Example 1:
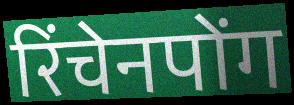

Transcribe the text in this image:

रिंचेनपोंग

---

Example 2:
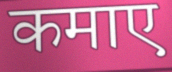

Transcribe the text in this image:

कमाए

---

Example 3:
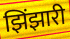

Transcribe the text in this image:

झिंझारी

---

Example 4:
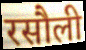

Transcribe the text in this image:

रसौली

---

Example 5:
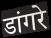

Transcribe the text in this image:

डांगरे